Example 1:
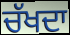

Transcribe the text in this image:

ਚੱਖਦਾ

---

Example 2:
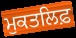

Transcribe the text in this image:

ਮੁਕਤਲਿਫ਼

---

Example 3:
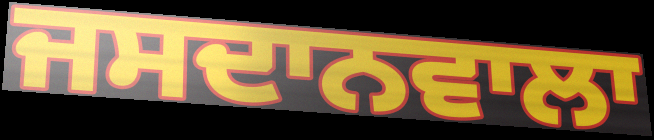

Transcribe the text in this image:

ਜਸਦਾਨਵਾਲਾ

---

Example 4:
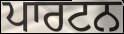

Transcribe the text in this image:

ਪਾਰਟਨ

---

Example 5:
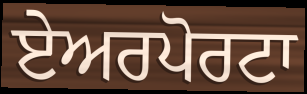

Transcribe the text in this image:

ਏਅਰਪੋਰਟਾ